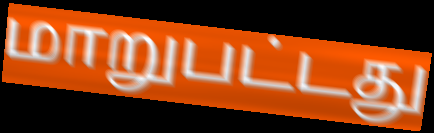
மாறுபட்டது